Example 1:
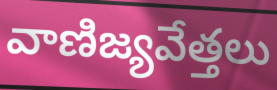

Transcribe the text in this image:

వాణిజ్యవేత్తలు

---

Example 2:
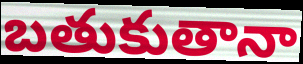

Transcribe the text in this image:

బతుకుతానా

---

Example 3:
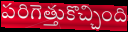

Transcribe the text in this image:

పరిగెత్తుకొచ్చింది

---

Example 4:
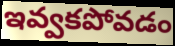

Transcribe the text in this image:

ఇవ్వకపోవడం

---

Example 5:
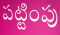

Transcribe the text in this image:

పట్టింపు